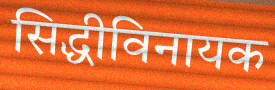
सिद्धीविनायक